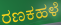
ರಣಕಹಳೆ